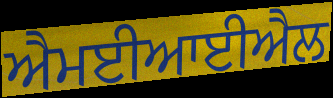
ਐਮਈਆਈਐਲ